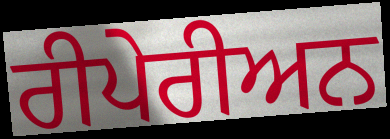
ਰੀਪੇਰੀਅਨ